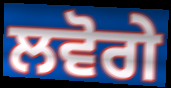
ਲਵੋਗੇ